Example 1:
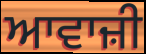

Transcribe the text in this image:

ਆਵਾਜ਼ੀ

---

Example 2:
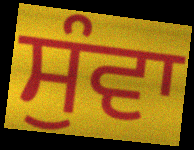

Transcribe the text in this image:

ਸੁੰਵਾ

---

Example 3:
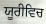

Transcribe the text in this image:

ਯੂਰੀਵਿਚ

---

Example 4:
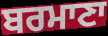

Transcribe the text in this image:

ਬਰਮਾਣਾ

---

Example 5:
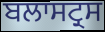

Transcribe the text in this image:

ਬਲਾਸਟ੍ਰਸ